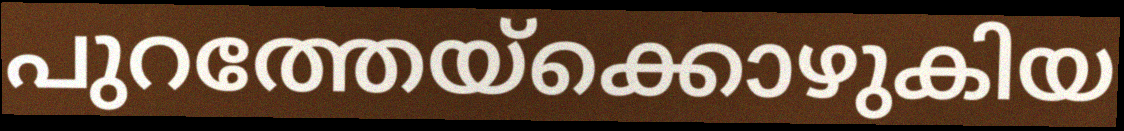
പുറത്തേയ്ക്കൊഴുകിയ